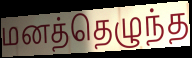
மனத்தெழுந்த